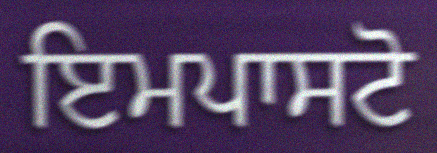
ਇਮਪਾਸਟੋ